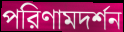
পরিণামদর্শন